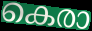
കെരാ